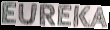
EUREKA